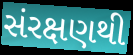
સંરક્ષણથી